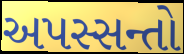
અપસ્સન્તો